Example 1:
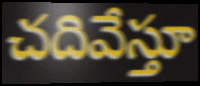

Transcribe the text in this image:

చదివేస్తూ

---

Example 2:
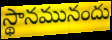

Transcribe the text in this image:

స్థానమునందు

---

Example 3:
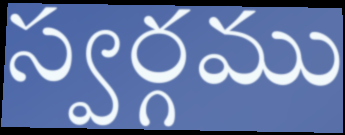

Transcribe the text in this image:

స్వర్గము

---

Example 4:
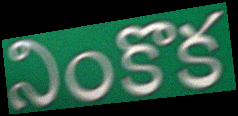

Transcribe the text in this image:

నింకొక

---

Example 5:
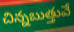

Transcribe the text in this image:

చిన్నబుత్తువే